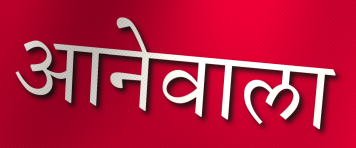
आनेवाला